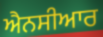
ਐਨਸੀਆਰ